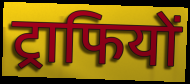
ट्राफियों